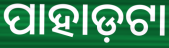
ପାହାଡ଼ଟା